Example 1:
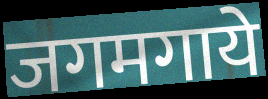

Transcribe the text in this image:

जगमगाये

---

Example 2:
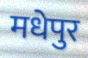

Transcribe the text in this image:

मधेपुर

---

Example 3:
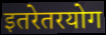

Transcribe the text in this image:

इतरेतरयोग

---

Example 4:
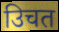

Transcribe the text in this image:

उिचत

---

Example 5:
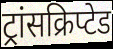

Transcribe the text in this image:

ट्रांसक्रिप्टेड